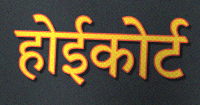
होईकोर्ट